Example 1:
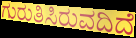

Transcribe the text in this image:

ಗುರುತಿಸಿರುವದಿದೆ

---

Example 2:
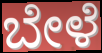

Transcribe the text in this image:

ಬೇಳೆ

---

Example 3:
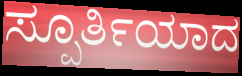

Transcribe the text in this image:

ಸ್ಪೂರ್ತಿಯಾದ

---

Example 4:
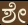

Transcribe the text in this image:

ಶೇ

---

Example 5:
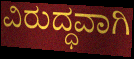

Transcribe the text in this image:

ವಿರುದ್ಧವಾಗಿ